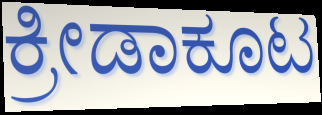
ಕ್ರೀಡಾಕೂಟ